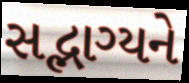
સદ્ભાગ્યને